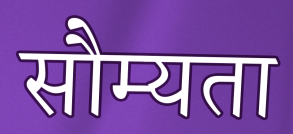
सौम्यता